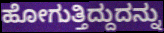
ಹೋಗುತ್ತಿದ್ದುದನ್ನು